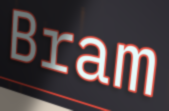
Bram